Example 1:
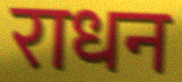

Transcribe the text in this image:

राधन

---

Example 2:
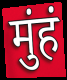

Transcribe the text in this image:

मुंहं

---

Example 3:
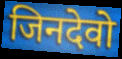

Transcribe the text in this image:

जिनदेवो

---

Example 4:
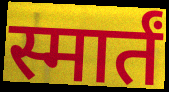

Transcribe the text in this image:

स्मार्तं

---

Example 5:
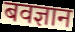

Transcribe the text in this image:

बवज्ञान